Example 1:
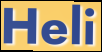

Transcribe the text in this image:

Heli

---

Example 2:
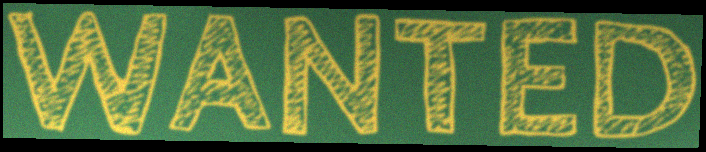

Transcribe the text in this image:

WANTED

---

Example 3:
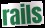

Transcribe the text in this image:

rails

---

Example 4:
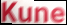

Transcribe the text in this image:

Kune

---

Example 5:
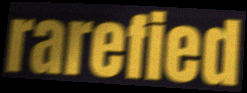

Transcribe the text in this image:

rarefied